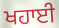
ਖਹਾਈ